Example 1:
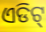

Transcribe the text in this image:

ଏଡିଟ୍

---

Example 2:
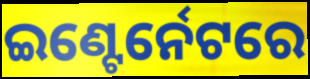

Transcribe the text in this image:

ଇଣ୍ଟେର୍ନେଟରେ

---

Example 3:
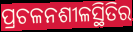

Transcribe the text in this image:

ପ୍ରଚଳନଶୀଳସ୍ଥିତିର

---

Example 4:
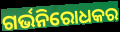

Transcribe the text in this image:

ଗର୍ଭନିରୋଧକର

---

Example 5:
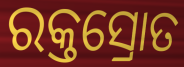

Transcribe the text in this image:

ରକ୍ତସ୍ରୋତ